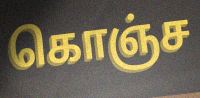
கொஞ்ச